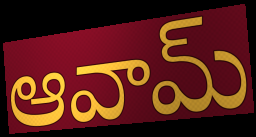
ఆవామ్